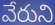
వేరుని